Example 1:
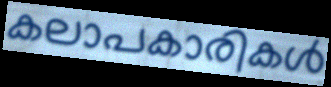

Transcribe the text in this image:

കലാപകാരികൾ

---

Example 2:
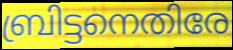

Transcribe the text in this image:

ബ്രിട്ടനെതിരേ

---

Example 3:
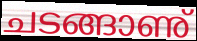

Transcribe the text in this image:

ചടങ്ങാണു്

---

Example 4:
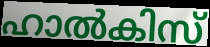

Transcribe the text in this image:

ഹാൽകിസ്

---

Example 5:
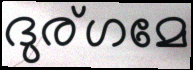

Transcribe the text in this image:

ദുര്ഗമേ